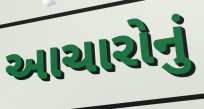
આચારોનું